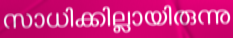
സാധിക്കില്ലായിരുന്നു